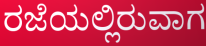
ರಜೆಯಲ್ಲಿರುವಾಗ